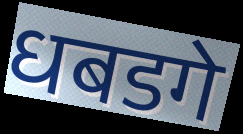
धबडगे